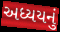
અધ્યયનું